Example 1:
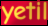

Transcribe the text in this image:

yetil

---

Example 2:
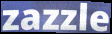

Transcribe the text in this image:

zazzle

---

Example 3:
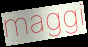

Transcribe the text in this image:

maggi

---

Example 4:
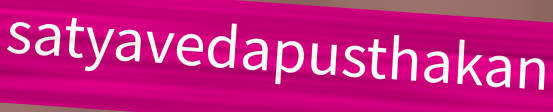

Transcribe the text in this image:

satyavedapusthakan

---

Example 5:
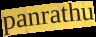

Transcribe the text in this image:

panrathu